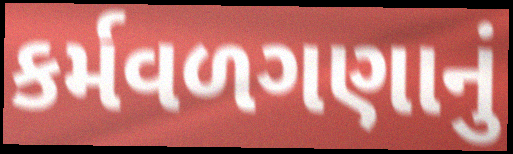
કર્મવળગણાનું